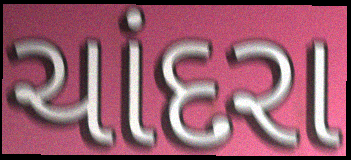
ચાંદરા